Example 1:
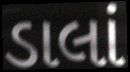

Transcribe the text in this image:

ડાલાં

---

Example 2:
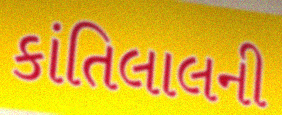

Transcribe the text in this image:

કાંતિલાલની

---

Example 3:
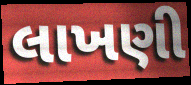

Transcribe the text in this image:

લાખણી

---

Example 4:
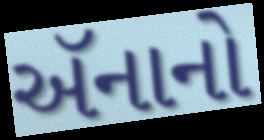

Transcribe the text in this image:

ઍનાનો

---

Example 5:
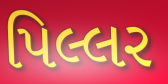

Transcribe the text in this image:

પિલ્લર